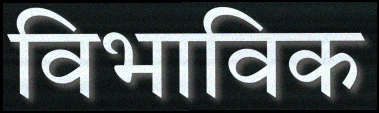
विभाविक